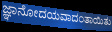
ಜ್ಞಾನೋದಯವಾದಂತಾಯಿತು